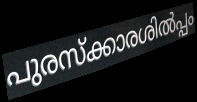
പുരസ്ക്കാരശിൽപ്പം